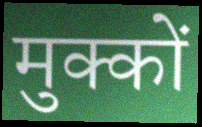
मुक्कों